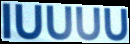
IUUUU